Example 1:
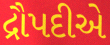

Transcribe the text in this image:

દ્રૌપદીએ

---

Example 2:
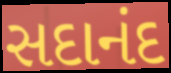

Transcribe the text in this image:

સદાનંદ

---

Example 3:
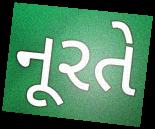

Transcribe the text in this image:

નૂરતે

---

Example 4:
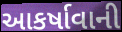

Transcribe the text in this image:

આકર્ષાવાની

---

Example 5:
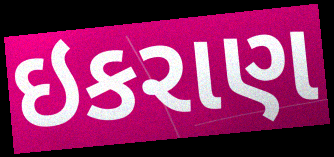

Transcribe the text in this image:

ઇકરાણ